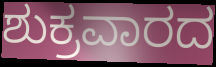
ಶುಕ್ರವಾರದ